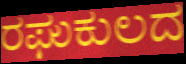
ರಘುಕುಲದ